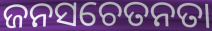
ଜନସଚେତନତା